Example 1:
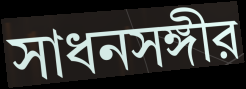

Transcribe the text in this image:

সাধনসঙ্গীর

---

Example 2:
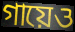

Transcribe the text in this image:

গায়েও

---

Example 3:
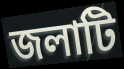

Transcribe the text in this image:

জলাটি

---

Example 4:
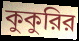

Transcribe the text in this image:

কুকুরির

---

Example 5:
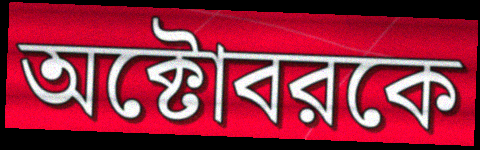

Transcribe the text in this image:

অক্টোবরকে